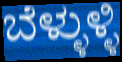
ಬೆಳ್ಳುಳ್ಳಿ